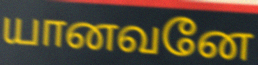
யானவனே